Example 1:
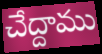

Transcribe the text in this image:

చేద్దాము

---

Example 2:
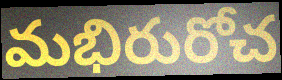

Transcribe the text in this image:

మభిరురోచ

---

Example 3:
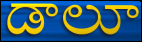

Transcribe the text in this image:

డాలూ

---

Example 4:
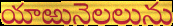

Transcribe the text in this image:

యాఱునెలలును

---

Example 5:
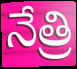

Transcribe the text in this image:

నేత్రి